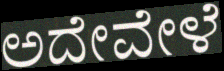
ಅದೇವೇಳೆ